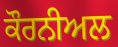
ਕੌਰਨੀਅਲ